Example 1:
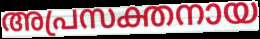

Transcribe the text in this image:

അപ്രസക്തനായ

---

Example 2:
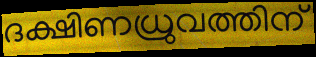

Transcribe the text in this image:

ദക്ഷിണധ്രുവത്തിന്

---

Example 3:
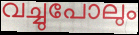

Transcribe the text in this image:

വച്ചുപോലും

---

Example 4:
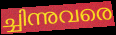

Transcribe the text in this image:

ച്ചിന്നുവരെ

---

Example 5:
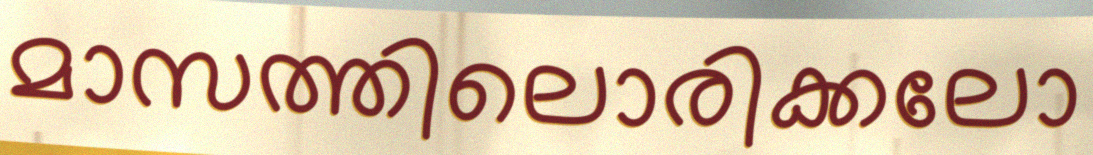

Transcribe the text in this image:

മാസത്തിലൊരിക്കലോ